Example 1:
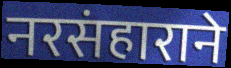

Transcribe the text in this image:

नरसंहाराने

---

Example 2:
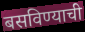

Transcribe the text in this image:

बसविण्याची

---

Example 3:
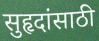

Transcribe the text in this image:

सुहृदांसाठी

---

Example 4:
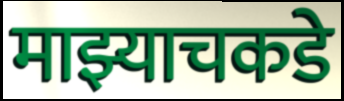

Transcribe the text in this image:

माझ्याचकडे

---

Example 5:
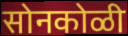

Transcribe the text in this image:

सोनकोळी